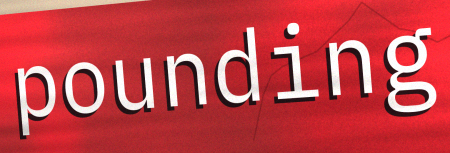
pounding